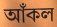
আঁকল